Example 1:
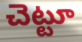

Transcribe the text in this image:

చెట్టూ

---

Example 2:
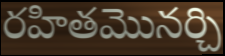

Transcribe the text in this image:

రహితమొనర్చి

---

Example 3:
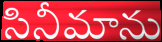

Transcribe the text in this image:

సినీమాను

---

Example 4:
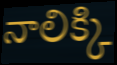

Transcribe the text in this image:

నాలిక్కి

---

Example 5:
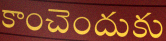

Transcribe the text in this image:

కాంచెందుకు